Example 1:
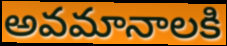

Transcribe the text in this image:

అవమానాలకి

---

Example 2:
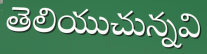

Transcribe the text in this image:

తెలియుచున్నవి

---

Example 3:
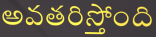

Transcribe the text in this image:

అవతరిస్తోంది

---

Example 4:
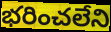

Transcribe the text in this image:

భరించలేని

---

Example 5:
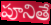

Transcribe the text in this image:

పూనితే